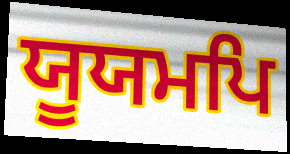
ਯੂਯਮਪਿ